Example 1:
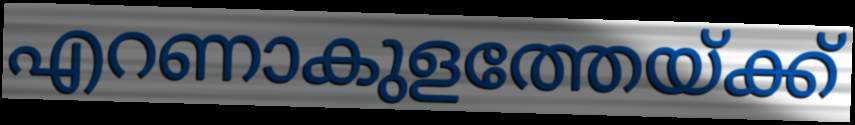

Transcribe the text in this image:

എറണാകുളത്തേയ്ക്ക്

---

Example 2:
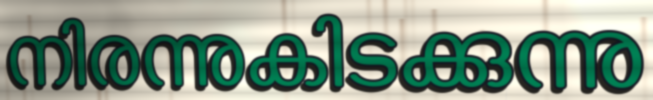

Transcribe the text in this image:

നിരന്നുകിടക്കുന്നു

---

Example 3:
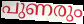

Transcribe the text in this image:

പുണരും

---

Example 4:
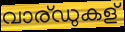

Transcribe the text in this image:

വാര്ഡുകള്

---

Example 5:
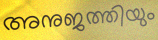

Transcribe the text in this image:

അനുജത്തിയും